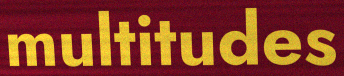
multitudes